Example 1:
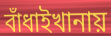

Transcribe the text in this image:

বাঁধাইখানায়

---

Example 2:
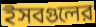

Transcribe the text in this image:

ইসবগুলের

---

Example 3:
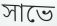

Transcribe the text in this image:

সাভে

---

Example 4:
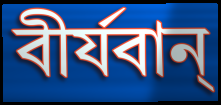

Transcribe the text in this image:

বীর্যবান্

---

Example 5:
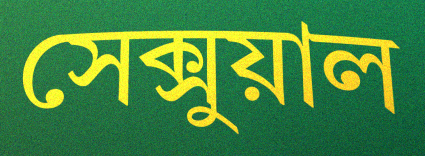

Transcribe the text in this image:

সেক্সুয়াল